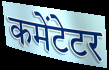
कमेंटेटर